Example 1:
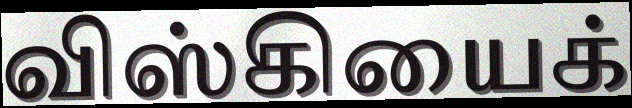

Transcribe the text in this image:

விஸ்கியைக்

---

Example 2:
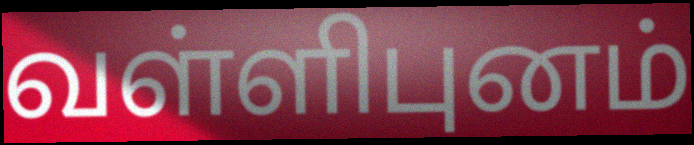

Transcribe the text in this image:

வள்ளிபுனம்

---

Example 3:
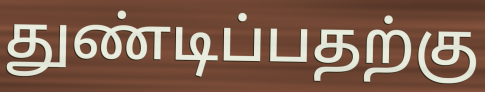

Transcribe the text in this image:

துண்டிப்பதற்கு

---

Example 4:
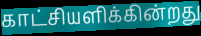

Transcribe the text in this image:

காட்சியளிக்கின்றது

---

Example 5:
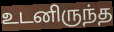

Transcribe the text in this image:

உடனிருந்த